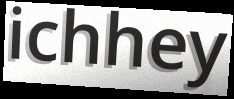
ichhey